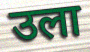
उला